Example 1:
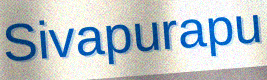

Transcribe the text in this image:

Sivapurapu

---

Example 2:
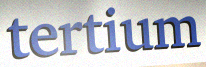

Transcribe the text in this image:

tertium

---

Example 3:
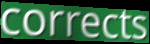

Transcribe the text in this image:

corrects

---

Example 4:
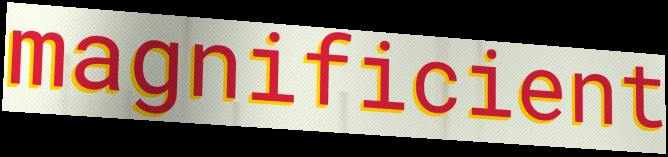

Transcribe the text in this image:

magnificient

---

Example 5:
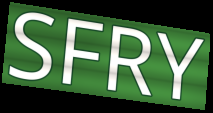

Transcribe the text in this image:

SFRY